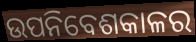
ଉପନିବେଶକାଳର